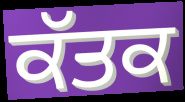
ਕੱਤਕ